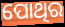
ପୋଥିର